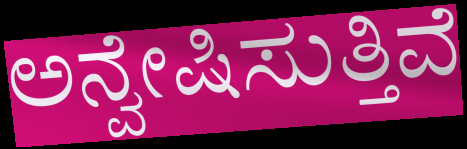
ಅನ್ವೇಷಿಸುತ್ತಿವೆ